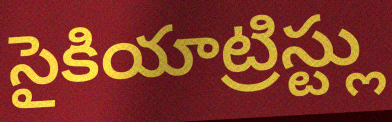
సైకియాట్రిస్ట్లు